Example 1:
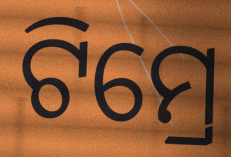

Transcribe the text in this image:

ଟିମ୍ରେ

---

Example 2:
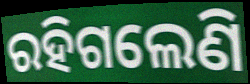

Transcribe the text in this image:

ରହିଗଲେଣି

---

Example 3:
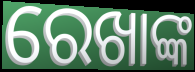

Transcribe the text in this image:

ରେଖାଙ୍କ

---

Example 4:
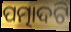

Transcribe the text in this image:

ପତ୍ମାଦଟି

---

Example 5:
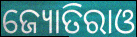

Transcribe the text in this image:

ଜ୍ୟୋତିରାଓ